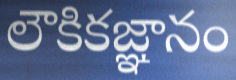
లౌకికజ్ఞానం